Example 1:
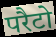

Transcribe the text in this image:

परैटो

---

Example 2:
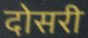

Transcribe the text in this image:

दोसरी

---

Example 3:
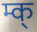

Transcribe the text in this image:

म्क्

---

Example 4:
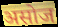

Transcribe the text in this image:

असोज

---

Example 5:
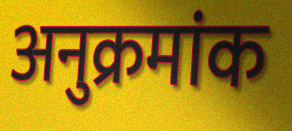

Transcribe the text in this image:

अनुक्रमांक